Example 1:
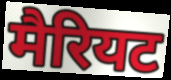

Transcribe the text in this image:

मैरियट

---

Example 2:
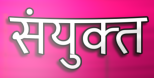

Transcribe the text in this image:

संयुक्‍त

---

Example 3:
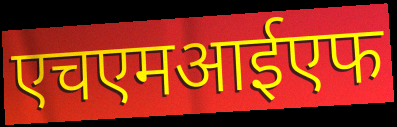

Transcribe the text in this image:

एचएमआईएफ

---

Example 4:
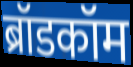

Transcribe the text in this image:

ब्रॉडकॉम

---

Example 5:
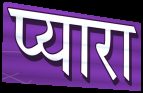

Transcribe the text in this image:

प्‍यारा